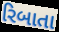
રિબાતા